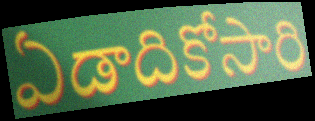
ఏడాదికోసారి